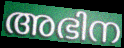
അഭിന